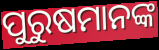
ପୁରୁଷମାନଙ୍କ